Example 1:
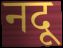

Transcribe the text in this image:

नदू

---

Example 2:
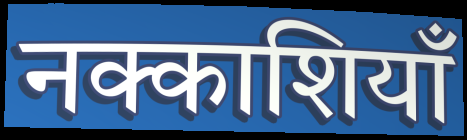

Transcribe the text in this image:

नक्काशियाँ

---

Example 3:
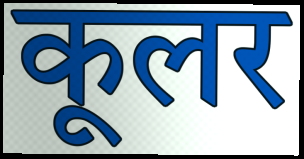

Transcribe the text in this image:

कूलर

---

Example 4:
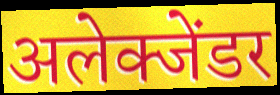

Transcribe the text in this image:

अलेक्जेंडर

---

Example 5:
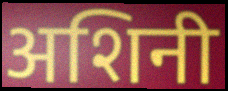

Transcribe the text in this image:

अशिनी